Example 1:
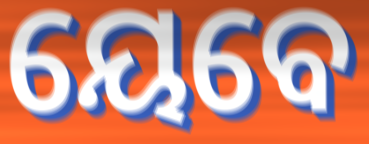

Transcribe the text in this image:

ୟେବେ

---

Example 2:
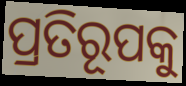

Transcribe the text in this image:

ପ୍ରତିରୂପକୁ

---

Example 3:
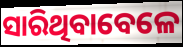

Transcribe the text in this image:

ସାରିଥିବାବେଳେ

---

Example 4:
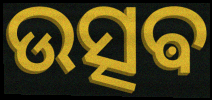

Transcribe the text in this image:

ଉତ୍ସଵ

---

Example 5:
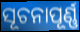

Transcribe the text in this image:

ସୂଚନାପୂର୍ଣ୍ଣ